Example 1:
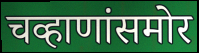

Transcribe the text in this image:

चव्हाणांसमोर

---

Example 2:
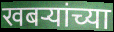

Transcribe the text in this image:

खबऱ्यांच्या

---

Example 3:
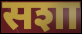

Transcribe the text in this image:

सशा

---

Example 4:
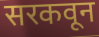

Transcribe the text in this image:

सरकवून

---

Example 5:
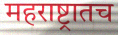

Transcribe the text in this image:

महराष्ट्रातच